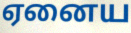
ஏனைய